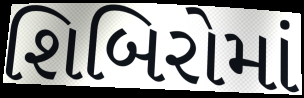
શિબિરોમાં